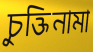
চুক্তিনামা